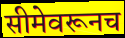
सीमेवरूनच